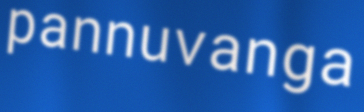
pannuvanga